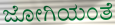
ಜೋಗಿಯಂತೆ